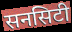
सनसिटी